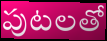
పుటలతో